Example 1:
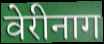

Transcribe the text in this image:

वेरीनाग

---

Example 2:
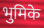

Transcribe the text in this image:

भुमिके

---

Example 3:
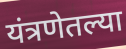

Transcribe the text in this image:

यंत्रणेतल्या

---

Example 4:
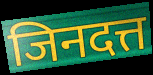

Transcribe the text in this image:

जिनदत्त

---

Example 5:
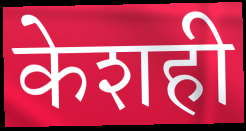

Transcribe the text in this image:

केशही